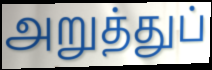
அறுத்துப்